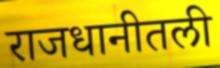
राजधानीतली